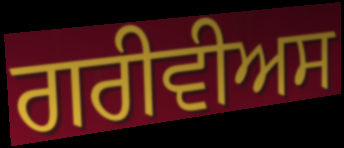
ਗਰੀਵੀਅਸ